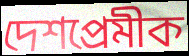
দেশপ্রেমীক